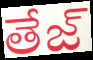
తేజ్